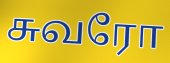
சுவரோ